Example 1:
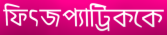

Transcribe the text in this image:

ফিৎজপ্যাট্রিককে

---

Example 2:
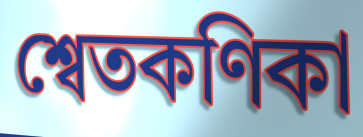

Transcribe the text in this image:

শ্বেতকণিকা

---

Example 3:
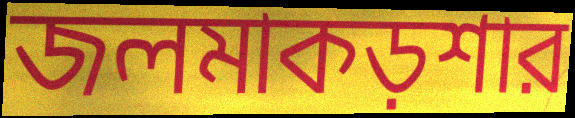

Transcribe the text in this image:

জলমাকড়শার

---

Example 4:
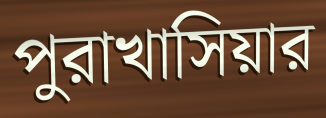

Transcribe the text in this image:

পুরাখাসিয়ার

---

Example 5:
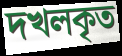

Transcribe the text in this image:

দখলকৃত